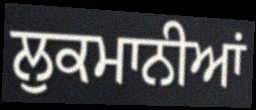
ਲੁਕਮਾਨੀਆਂ